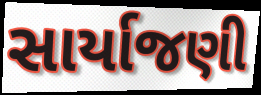
સાર્યાજણી